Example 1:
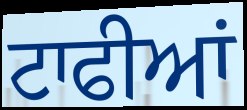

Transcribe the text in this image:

ਟਾਫੀਆਂ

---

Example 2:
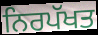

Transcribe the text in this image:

ਨਿਰਪੱਖਤ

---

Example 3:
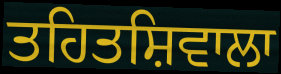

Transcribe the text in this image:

ਤਹਿਤਸ਼ਿਵਾਲਾ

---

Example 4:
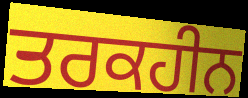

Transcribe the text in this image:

ਤਰਕਹੀਨ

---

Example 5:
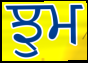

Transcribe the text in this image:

ਝੁਮ